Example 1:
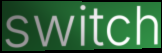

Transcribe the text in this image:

switch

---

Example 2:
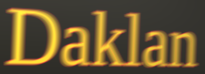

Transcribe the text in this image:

Daklan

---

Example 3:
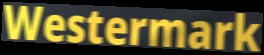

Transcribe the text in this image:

Westermark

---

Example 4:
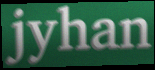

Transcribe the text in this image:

jyhan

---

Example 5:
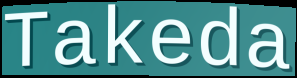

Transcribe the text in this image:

Takeda